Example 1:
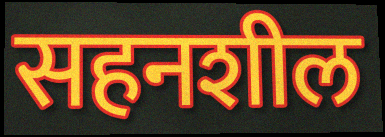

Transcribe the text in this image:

सहनशील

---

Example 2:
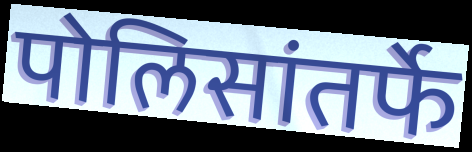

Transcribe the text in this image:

पोलिसांतर्फे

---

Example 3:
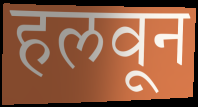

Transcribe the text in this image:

हलवून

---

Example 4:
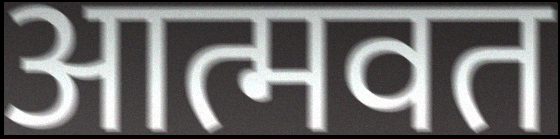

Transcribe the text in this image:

आत्मवत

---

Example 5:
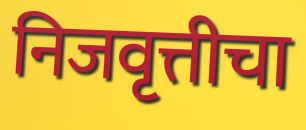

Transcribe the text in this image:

निजवृत्तीचा